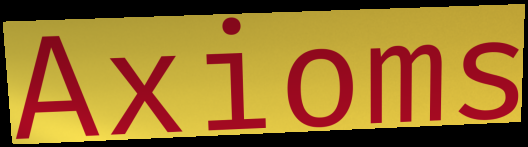
Axioms